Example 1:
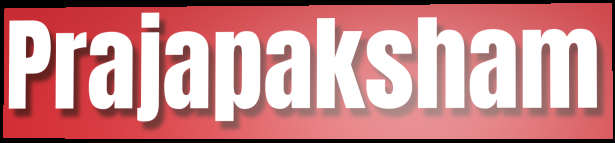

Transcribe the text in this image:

Prajapaksham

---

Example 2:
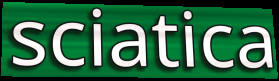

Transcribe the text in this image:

sciatica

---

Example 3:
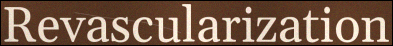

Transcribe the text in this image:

Revascularization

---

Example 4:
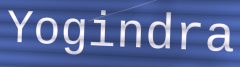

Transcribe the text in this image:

Yogindra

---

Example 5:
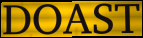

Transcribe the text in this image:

DOAST